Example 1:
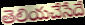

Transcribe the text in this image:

తెలియచేసేదే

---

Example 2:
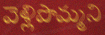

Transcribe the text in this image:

వెళ్లిపొమ్మని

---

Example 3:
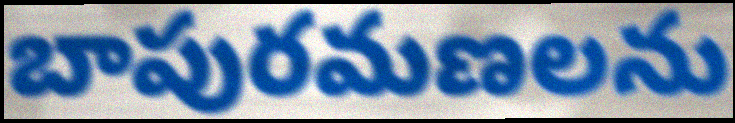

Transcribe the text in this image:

బాపురమణలను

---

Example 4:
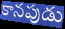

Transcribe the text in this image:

కానపుడు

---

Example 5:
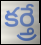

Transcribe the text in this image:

కర్త్రే